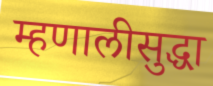
म्हणालीसुद्धा